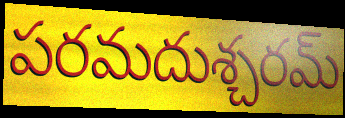
పరమదుశ్చరమ్